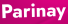
Parinay